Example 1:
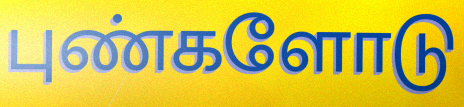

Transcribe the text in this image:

புண்களோடு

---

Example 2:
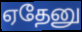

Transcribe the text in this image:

ஏதேனு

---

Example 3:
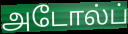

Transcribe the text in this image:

அடோல்ப்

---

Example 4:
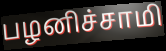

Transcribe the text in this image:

பழனிச்சாமி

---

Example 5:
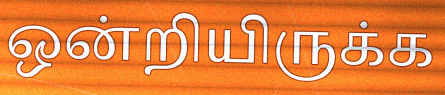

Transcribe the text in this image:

ஒன்றியிருக்க